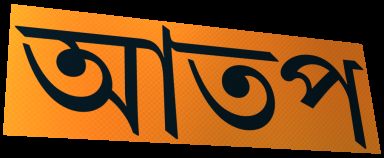
আতপ